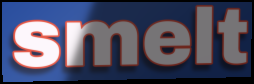
smelt